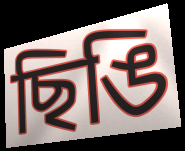
ছিঙি